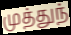
முத்துந்